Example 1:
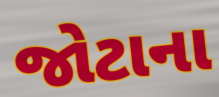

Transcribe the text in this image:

જોટાના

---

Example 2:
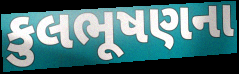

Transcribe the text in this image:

કુલભૂષણના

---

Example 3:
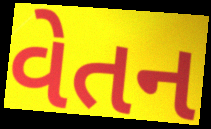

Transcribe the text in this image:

વેતન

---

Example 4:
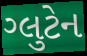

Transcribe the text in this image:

ગ્લુટેન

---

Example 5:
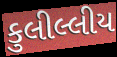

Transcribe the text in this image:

કુલીલ્લીય